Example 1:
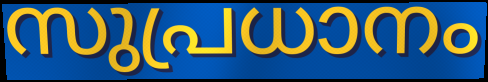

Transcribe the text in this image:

സുപ്രധാനം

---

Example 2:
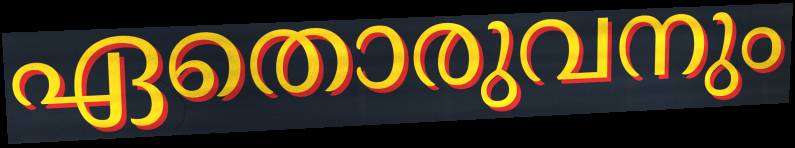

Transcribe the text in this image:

ഏതൊരുവനും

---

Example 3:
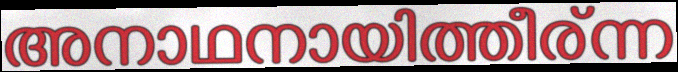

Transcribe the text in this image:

അനാഥനായിത്തീര്ന്ന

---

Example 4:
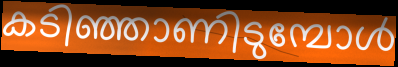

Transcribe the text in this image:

കടിഞ്ഞാണിടുമ്പോൾ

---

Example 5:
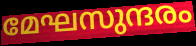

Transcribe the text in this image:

മേഘസുന്ദരം